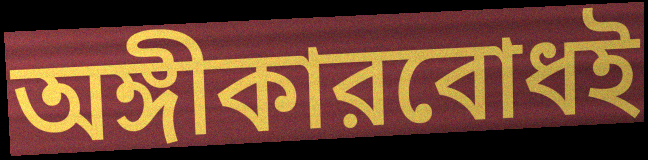
অঙ্গীকারবোধই